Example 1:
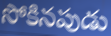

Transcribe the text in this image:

సోకినపుడు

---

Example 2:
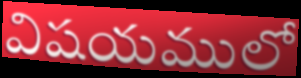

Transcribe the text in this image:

విషయములో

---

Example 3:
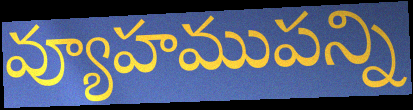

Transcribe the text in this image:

వ్యూహముపన్ని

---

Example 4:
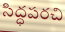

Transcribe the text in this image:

సిద్ధపరచి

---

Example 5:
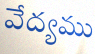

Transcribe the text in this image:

వేద్యము